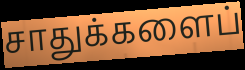
சாதுக்களைப்